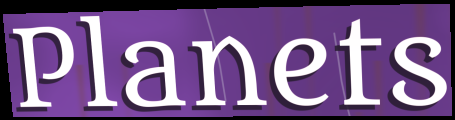
Planets